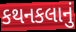
કથનકલાનું